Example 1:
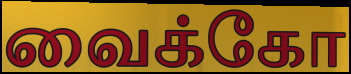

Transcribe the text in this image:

வைக்கோ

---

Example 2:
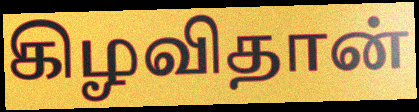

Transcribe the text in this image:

கிழவிதான்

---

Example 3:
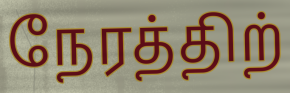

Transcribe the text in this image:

நேரத்திற்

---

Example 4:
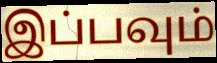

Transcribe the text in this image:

இப்பவும்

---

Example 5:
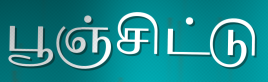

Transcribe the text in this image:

பூஞ்சிட்டு